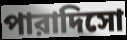
পারাদিসো